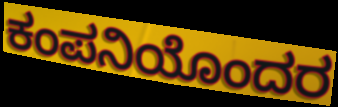
ಕಂಪನಿಯೊಂದರ